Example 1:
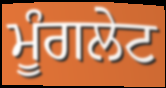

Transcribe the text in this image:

ਮੂੰਗਲੇਟ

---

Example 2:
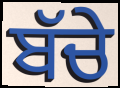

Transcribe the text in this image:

ਬੱਚੇ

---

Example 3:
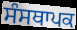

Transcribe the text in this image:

ਸੰਸਥਾਪਕ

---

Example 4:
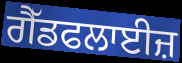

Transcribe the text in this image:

ਗੈੱਡਫਲਾਈਜ਼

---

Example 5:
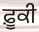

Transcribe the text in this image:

ਫ਼ੂਕੀ